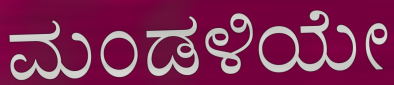
ಮಂಡಳಿಯೇ